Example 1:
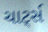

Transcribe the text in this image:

ચાર્ટ્સ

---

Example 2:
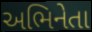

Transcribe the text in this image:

અભિનેતા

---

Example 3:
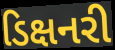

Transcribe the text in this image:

ડિક્ષનરી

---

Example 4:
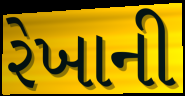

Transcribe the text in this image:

રેખાની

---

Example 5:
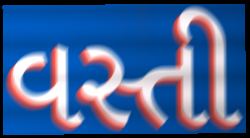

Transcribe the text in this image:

વસ્તી